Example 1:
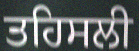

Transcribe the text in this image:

ਤਹਿਸਲੀ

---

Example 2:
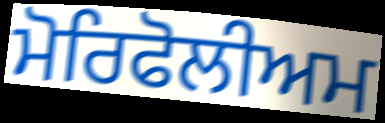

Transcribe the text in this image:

ਮੋਰਿਫੋਲੀਅਮ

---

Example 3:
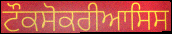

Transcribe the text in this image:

ਟੌਕਸੋਕਰੀਆਸਿਸ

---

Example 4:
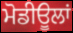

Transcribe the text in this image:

ਮੋਡੀਊਲਾਂ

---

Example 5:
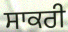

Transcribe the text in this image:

ਸਾਕਰੀ